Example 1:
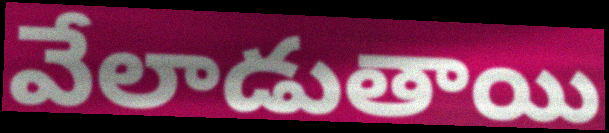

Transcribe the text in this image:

వేలాడుతాయి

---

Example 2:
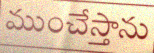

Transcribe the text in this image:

ముంచేస్తాను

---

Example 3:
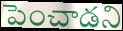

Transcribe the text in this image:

పెంచాడని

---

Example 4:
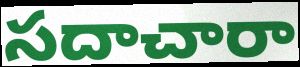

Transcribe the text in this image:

సదాచారా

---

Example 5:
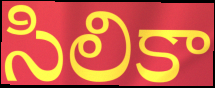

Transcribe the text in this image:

సిలికా